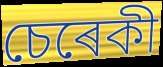
চেৰেকী